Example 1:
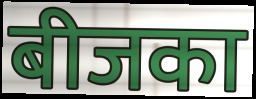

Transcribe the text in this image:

बीजका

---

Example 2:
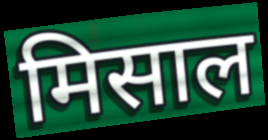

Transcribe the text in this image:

मिसाल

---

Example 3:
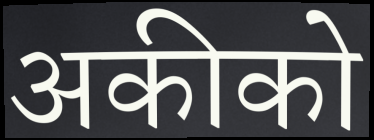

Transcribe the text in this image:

अकीको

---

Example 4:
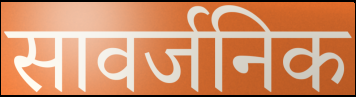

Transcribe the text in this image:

सावर्जनिक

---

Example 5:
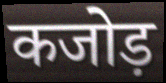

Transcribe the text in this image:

कजोड़